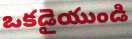
ఒకడైయుండి